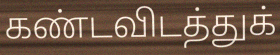
கண்டவிடத்துக்